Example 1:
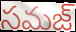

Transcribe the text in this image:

సమజ్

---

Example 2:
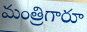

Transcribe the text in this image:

మంత్రిగారూ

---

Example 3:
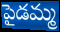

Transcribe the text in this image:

పైడమ్మ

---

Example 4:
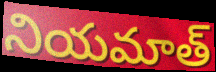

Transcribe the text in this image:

నియమాత్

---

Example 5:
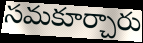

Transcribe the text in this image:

సమకూర్చారు